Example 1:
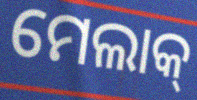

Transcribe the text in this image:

ମେଲାକ୍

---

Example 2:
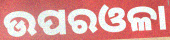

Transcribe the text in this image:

ଉପରଓଳା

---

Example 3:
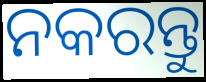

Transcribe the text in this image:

ନକରନ୍ତୁ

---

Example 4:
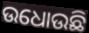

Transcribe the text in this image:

ଉଧୋଉଛି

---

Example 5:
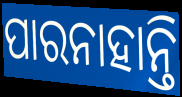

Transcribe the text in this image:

ପାରନାହାନ୍ତି